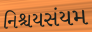
નિશ્ચયસંયમ